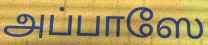
அப்பாஸே